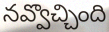
నవ్వొచ్చింది